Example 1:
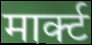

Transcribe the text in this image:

मार्क्ट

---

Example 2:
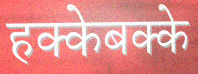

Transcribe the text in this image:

हक्केबक्के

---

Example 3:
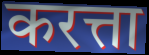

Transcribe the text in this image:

करत्ता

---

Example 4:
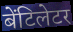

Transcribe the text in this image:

बेंटिलेटर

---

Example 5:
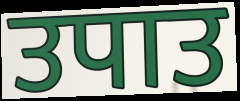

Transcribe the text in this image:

उपाउ